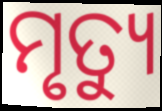
ମୃତ୍ୟୁ